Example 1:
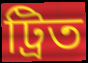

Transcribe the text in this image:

ট্ৰিত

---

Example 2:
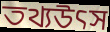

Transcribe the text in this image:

তথ্যউৎস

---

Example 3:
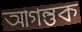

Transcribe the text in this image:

আগন্তুক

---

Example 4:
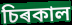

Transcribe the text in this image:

চিৰকাল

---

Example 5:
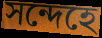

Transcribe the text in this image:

সন্দেহে